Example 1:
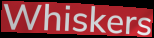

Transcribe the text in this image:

Whiskers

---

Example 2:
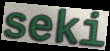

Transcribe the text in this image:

seki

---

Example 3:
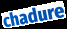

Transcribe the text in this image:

chadure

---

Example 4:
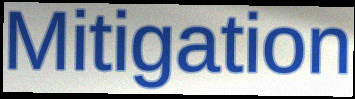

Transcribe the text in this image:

Mitigation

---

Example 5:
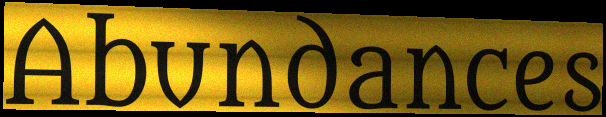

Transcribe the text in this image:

Abundances